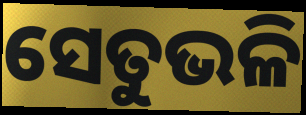
ସେତୁଭଳି